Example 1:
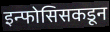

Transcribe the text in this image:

इन्फोसिसकडून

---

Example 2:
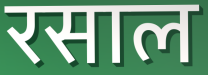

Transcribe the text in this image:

रसाल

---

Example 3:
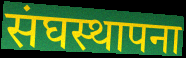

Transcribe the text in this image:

संघस्थापना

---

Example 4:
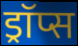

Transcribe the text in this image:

ड्रॉप्स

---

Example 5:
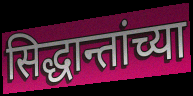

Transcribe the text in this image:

सिद्धान्तांच्या